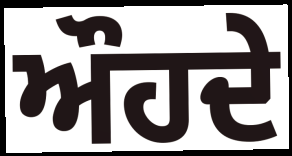
ਔਹਦੇ